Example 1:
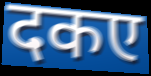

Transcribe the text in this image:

दकए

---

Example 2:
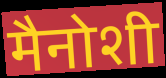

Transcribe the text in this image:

मैनोशी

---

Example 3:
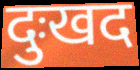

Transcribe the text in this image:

दुःखद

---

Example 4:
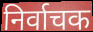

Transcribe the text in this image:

निर्वाचक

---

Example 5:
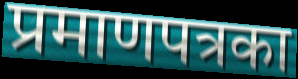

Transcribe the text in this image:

प्रमाणपत्रका